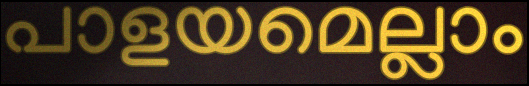
പാളയമെല്ലാം